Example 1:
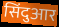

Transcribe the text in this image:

सिंदुआर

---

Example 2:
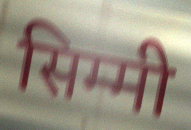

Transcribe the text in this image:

सिम्मी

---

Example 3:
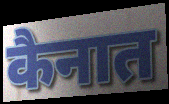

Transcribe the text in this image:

कैनात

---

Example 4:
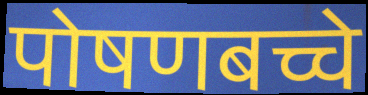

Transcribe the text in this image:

पोषणबच्चे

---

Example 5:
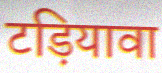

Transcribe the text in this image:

टड़ियावा